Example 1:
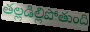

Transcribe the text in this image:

తల్లడిల్లిపోతుంది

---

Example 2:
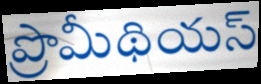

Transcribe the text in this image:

ప్రొమీథియస్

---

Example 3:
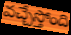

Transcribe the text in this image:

వచ్చేస్తోంది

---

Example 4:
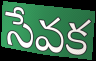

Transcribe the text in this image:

సేవక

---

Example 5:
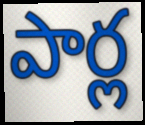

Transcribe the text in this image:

పార్ల